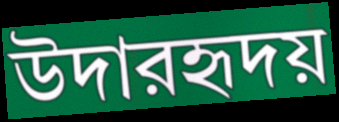
উদারহৃদয়